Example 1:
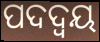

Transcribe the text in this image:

ପଦଦ୍ଵୟ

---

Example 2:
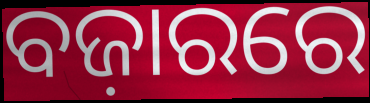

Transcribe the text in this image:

ବଜ଼ାରରେ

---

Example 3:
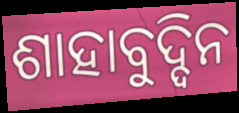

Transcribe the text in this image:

ଶାହାବୁଦ୍ଦିନ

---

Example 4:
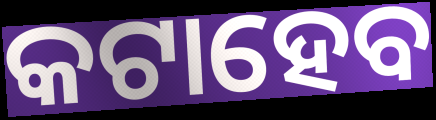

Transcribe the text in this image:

କଟାହେବ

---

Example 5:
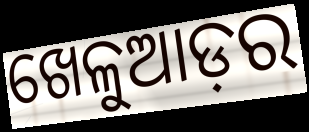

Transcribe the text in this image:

ଖେଳୁଆଡ଼ର